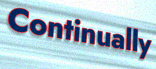
Continually